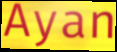
Ayan